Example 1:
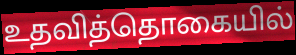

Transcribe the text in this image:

உதவித்தொகையில்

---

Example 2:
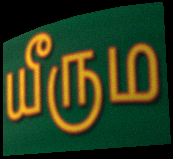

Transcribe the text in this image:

யீரும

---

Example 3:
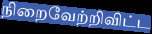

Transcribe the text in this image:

நிறைவேற்றிவிட்ட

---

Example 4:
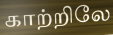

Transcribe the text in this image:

காற்றிலே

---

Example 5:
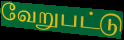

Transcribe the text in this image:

வேறுபட்டு